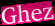
Ghez